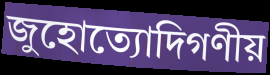
জুহোত্যোদিগণীয়